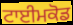
ਟਾਈਮਕੋਡ